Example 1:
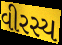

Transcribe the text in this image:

વીરસ્ય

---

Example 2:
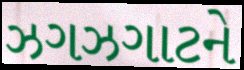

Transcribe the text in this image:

ઝગઝગાટને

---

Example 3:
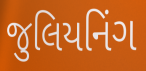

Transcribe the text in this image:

જુલિયનિંગ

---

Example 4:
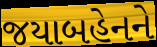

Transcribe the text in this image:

જયાબહેનને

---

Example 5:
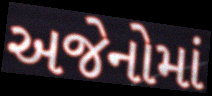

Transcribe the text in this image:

અજેનોમાં